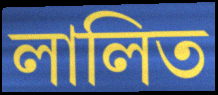
লালিত